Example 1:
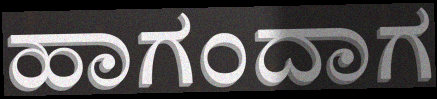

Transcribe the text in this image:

ಹಾಗಂದಾಗ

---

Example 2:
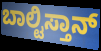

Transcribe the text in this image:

ಬಾಲ್ಟಿಸ್ತಾನ್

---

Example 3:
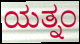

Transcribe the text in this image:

ಯತ್ನಂ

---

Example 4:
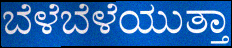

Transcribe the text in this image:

ಬೆಳೆಬೆಳೆಯುತ್ತಾ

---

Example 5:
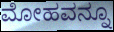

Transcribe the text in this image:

ಮೋಹವನ್ನೂ